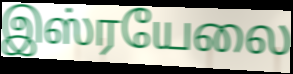
இஸ்ரயேலை